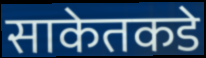
साकेतकडे